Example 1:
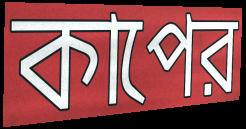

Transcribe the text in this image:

কাপের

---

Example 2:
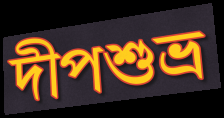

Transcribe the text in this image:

দীপশুভ্র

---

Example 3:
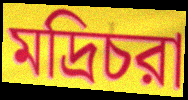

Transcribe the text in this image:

মদ্রিচরা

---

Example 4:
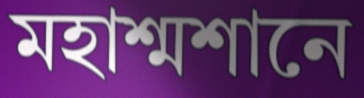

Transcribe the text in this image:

মহাশ্মশানে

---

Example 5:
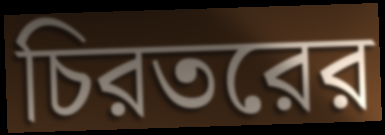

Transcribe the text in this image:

চিরতরের